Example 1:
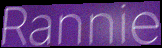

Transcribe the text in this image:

Rannie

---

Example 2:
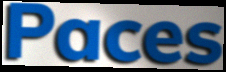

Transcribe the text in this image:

Paces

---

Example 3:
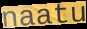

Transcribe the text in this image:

naatu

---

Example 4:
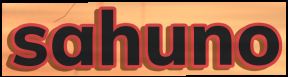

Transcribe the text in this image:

sahuno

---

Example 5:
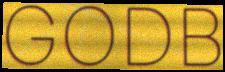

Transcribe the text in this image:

GODB